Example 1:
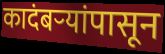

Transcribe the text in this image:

कादंबऱ्यांपासून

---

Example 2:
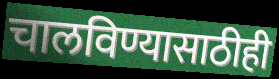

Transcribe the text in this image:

चालविण्यासाठीही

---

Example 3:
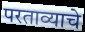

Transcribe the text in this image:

परताव्याचे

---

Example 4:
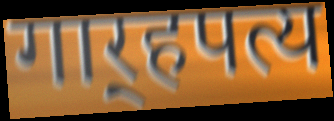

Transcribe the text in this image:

गार्हपत्य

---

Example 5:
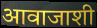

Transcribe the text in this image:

आवाजाशी